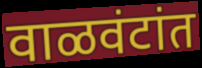
वाळवंटांत